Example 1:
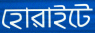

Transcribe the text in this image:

হোৱাইটে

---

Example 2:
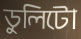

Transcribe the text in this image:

ডুলিটো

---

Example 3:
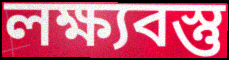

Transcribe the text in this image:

লক্ষ্যবস্তু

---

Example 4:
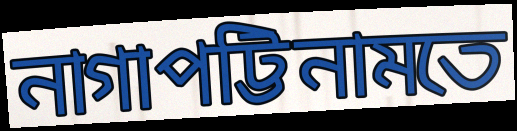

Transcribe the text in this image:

নাগাপট্টিনামতে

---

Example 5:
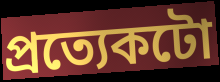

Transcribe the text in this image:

প্ৰত্যেকটো